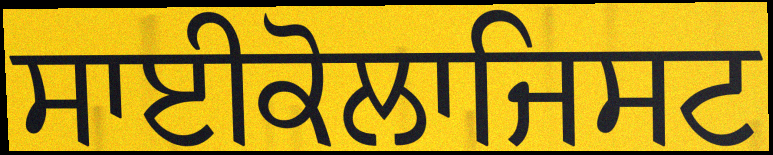
ਸਾਈਕੋਲਾਜਿਸਟ